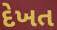
દેખત